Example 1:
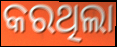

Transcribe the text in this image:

କରଥିଲା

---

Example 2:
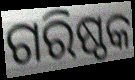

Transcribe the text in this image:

ଗରିଷ୍ଠକ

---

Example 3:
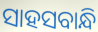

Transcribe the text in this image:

ସାହସବାନ୍ଧି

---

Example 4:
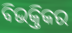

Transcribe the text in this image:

ବିଭକ୍ତିକର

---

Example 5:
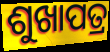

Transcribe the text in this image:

ଶୁଖାପତ୍ର